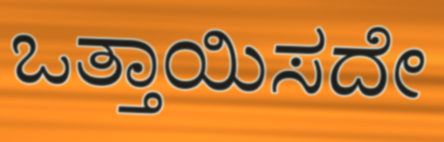
ಒತ್ತಾಯಿಸದೇ